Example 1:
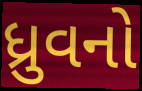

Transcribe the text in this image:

ધ્રુવનો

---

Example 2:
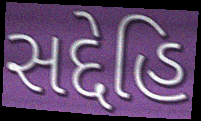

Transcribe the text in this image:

સદ્દેહિ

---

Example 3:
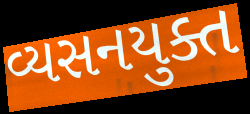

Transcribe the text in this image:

વ્યસનયુક્ત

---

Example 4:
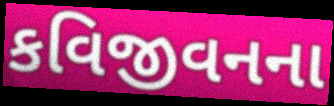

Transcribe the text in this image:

કવિજીવનના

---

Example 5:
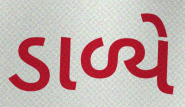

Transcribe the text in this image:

ડાળ્યે